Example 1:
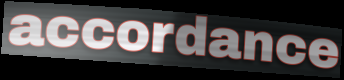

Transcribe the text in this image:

accordance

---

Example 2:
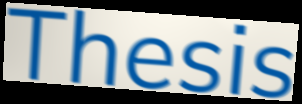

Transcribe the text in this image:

Thesis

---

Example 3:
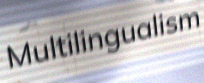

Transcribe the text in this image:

Multilingualism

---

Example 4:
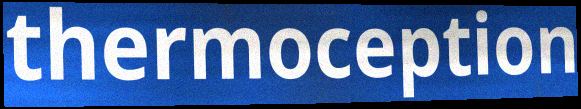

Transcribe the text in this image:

thermoception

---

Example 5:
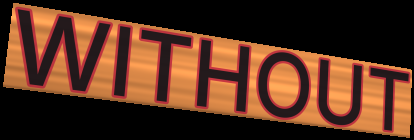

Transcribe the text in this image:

WITHOUT